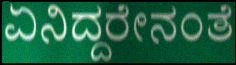
ಏನಿದ್ದರೇನಂತೆ